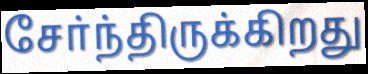
சேர்ந்திருக்கிறது